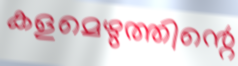
കളമെഴുത്തിന്റെ